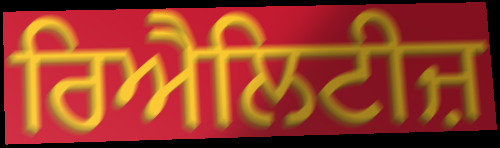
ਰਿਐਲਿਟੀਜ਼